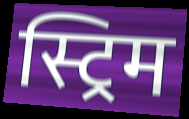
स्ट्रिम